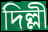
দিল্লী